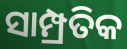
ସାମ୍ପ୍ରତିକ